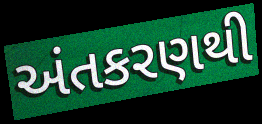
અંતકરણથી